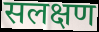
सलक्षण